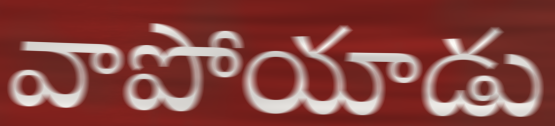
వాపోయాడు